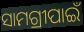
ସାମଗ୍ରୀପାଇଁ